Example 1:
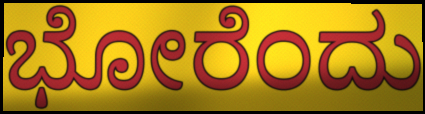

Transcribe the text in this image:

ಭೋರೆಂದು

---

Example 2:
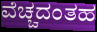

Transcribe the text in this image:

ವೆಚ್ಚದಂತಹ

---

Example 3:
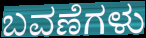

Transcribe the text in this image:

ಬವಣೆಗಳು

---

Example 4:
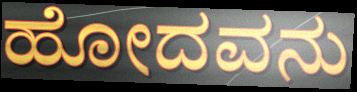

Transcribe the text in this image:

ಹೋದವನು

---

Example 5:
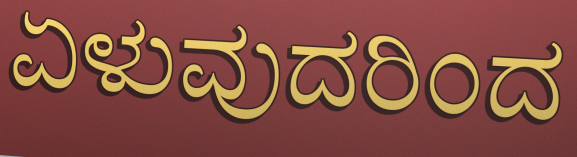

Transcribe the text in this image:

ಏಳುವುದರಿಂದ